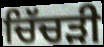
ਚਿੱਚੜੀ